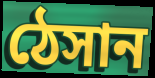
ঠেসান